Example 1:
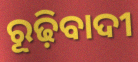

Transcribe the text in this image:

ରୂଢ଼ିବାଦୀ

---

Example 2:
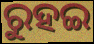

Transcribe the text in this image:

ରୁହଇ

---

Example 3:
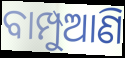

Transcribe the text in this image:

ବାମ୍ପୁଆଣି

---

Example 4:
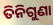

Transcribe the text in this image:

ତିନିଗୁଣା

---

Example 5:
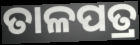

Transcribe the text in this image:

ତାଳପତ୍ର